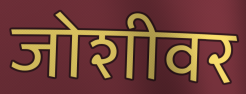
जोशीवर